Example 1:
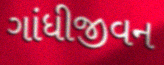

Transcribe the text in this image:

ગાંધીજીવન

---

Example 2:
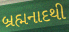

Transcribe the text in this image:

બ્રહ્મનાદથી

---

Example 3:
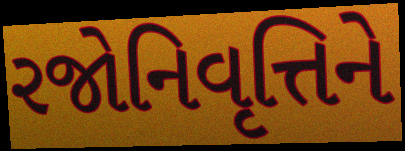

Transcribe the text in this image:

રજોનિવૃત્તિને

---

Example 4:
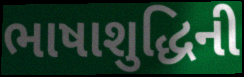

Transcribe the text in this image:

ભાષાશુદ્ધિની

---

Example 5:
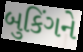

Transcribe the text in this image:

બુકિંગને